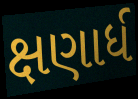
ક્ષણાર્ધ